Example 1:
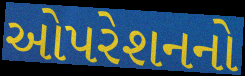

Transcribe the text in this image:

ઓપરેશનનો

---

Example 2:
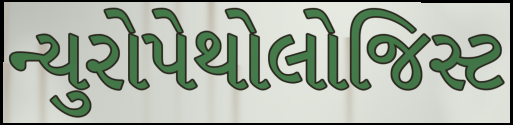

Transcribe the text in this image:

ન્યુરોપેથોલોજિસ્ટ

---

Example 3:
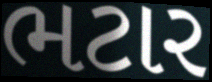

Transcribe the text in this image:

ભટાર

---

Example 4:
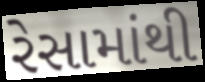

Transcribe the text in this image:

રેસામાંથી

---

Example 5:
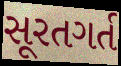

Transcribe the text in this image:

સૂરતગર્ત